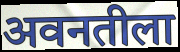
अवनतीला